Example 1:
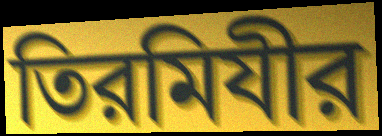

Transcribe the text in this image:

তিরমিযীর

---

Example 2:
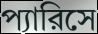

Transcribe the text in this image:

প্যারিসে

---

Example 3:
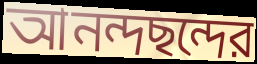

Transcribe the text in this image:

আনন্দছন্দের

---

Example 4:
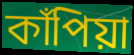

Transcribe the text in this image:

কাঁপিয়া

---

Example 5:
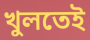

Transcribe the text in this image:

খুলতেই